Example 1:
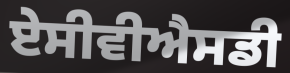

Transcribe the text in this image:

ਏਸੀਵੀਐਸਡੀ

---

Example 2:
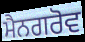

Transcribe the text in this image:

ਮੈਨਗਰੋਵ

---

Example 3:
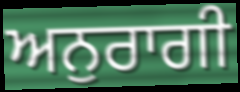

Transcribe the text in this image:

ਅਨੁਰਾਗੀ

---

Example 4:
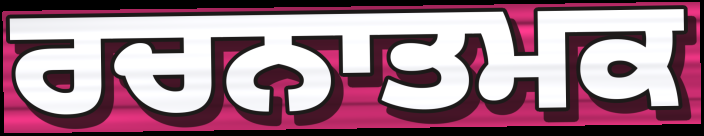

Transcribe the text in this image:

ਰਚਨਾਤਮਕ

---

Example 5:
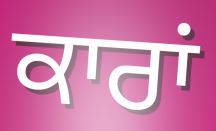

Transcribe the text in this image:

ਕਾਰਾਂ